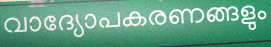
വാദ്യോപകരണങ്ങളും